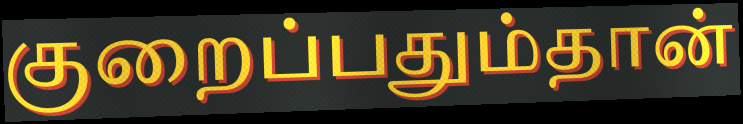
குறைப்பதும்தான்